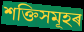
শক্তিসমূহৰ